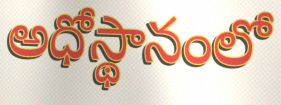
అధోస్థానంలో